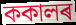
ককালৰ